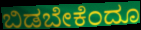
ಬಿಡಬೇಕೆಂದೂ